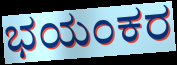
ಭಯಂಕರ